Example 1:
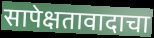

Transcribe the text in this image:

सापेक्षतावादाचा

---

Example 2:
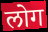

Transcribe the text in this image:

लोग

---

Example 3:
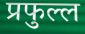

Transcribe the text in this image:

प्रफुल्ल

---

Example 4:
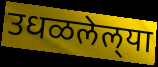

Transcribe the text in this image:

उधळलेल्या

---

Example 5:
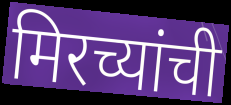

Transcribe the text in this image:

मिरच्यांची